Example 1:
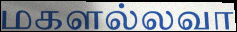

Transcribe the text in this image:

மகளல்லவா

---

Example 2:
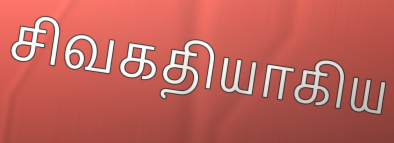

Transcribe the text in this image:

சிவகதியாகிய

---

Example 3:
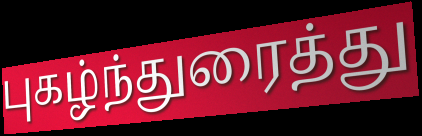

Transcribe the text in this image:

புகழ்ந்துரைத்து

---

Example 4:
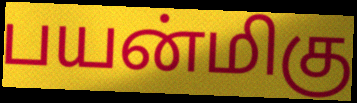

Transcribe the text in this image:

பயன்மிகு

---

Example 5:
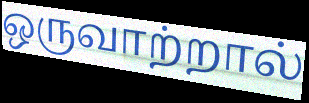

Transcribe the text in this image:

ஒருவாற்றால்